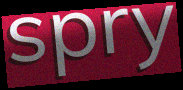
spry